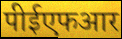
पीईएफआर